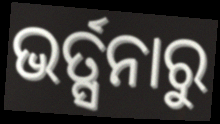
ଭର୍ତ୍ସନାରୁ